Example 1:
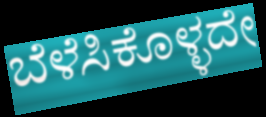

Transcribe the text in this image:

ಬೆಳೆಸಿಕೊಳ್ಳದೇ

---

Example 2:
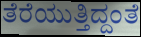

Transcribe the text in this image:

ತೆರೆಯುತ್ತಿದ್ದಂತೆ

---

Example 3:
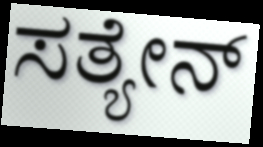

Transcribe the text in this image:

ಸತ್ಯೇನ್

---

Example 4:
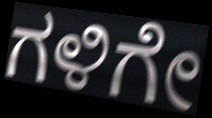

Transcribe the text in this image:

ಗಳಿಗೇ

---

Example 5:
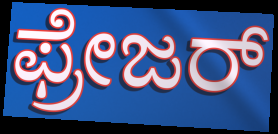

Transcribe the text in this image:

ಫ್ರೇಜರ್